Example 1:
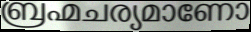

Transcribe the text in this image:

ബ്രഹ്മചര്യമാണോ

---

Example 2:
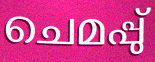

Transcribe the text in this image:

ചെമപ്പു്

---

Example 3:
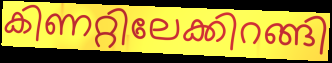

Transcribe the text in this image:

കിണറ്റിലേക്കിറങ്ങി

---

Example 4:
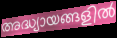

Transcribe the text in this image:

അദ്ധ്യായങ്ങളിൽ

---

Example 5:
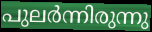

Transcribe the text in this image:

പുലർന്നിരുന്നു